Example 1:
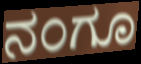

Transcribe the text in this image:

ನಂಗೂ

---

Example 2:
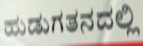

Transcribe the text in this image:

ಹುಡುಗತನದಲ್ಲಿ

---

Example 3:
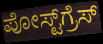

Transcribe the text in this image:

ಪೋಸ್ಟ್‌ಗ್ರೆಸ್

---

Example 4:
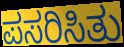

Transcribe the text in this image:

ಪಸರಿಸಿತು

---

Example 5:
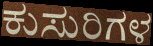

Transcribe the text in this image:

ಕುಸುರಿಗಳ